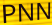
PNN